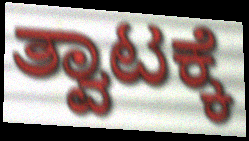
ತ್ವಾಟಕ್ಕೆ